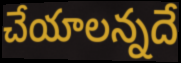
చేయాలన్నదే